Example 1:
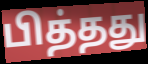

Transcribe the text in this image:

பித்தது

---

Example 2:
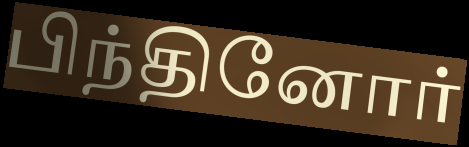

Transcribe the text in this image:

பிந்தினோர்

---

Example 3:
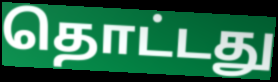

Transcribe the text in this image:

தொட்டது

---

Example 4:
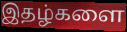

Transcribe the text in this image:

இதழ்களை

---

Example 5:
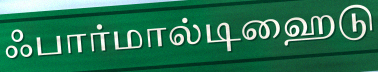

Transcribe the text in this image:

ஃபார்மால்டிஹைடு